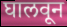
घालवून